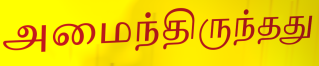
அமைந்திருந்தது